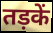
तड़कें